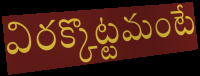
విరక్కొట్టమంటే